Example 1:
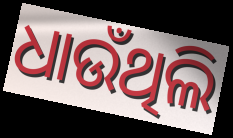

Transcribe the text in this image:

ଧାଉଁଥିଲି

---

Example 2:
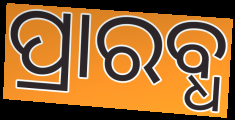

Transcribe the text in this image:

ପ୍ରାରବ୍ଧ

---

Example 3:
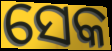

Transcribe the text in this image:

ସେକ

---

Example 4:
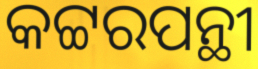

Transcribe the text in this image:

କଟ୍ଟରପନ୍ଥୀ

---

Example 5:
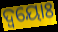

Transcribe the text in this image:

ଦ୍ବୟୋଃ